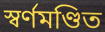
স্বর্ণমণ্ডিত